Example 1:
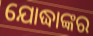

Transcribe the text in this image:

ଯୋଦ୍ଧାଙ୍କର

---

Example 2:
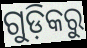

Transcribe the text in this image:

ଗୁଡ଼ିକରୁ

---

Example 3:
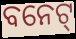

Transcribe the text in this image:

ବନେଟ୍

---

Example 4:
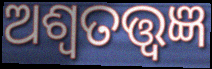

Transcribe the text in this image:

ଅଶ୍ୱତତ୍ତ୍ୱଜ୍ଞ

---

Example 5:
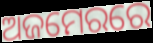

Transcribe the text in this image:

ଅଜମେରରେ